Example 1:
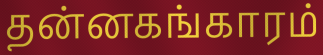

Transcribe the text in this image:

தன்னகங்காரம்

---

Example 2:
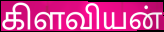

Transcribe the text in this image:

கிளவியன்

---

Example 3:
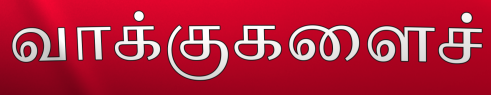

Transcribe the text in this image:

வாக்குகளைச்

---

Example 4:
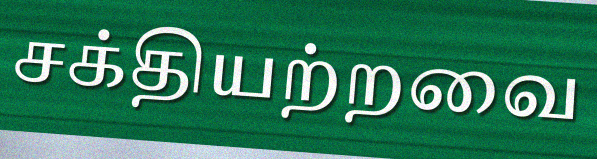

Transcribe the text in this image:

சக்தியற்றவை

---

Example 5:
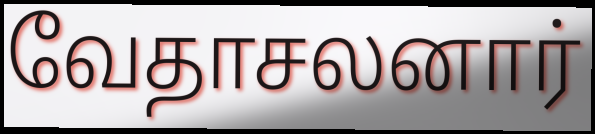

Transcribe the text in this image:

வேதாசலனார்